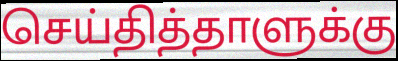
செய்தித்தாளுக்கு